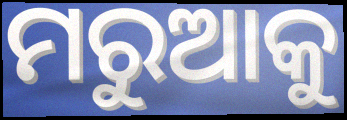
ମରୁଆକୁ